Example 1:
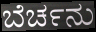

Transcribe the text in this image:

ಬೆರ್ಚನು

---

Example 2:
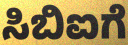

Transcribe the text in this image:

ಸಿಬಿಐಗೆ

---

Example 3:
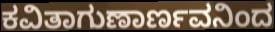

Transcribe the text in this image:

ಕವಿತಾಗುಣಾರ್ಣವನಿಂದ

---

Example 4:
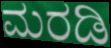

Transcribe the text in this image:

ಮರಡಿ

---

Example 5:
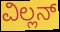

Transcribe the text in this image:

ವಿಲ್ಲನ್